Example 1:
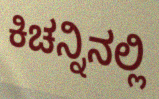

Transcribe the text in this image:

ಕಿಚನ್ನಿನಲ್ಲಿ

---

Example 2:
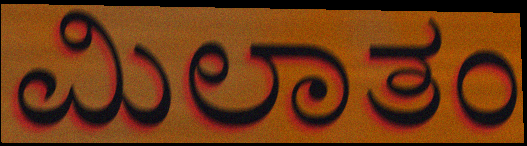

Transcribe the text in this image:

ಮಿಲಾತಂ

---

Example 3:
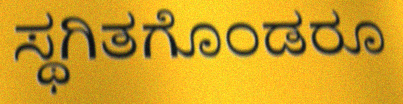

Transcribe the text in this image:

ಸ್ಥಗಿತಗೊಂಡರೂ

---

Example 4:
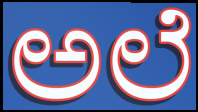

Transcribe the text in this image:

ಅಲೆ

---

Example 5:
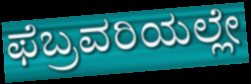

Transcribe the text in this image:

ಫೆಬ್ರವರಿಯಲ್ಲೇ